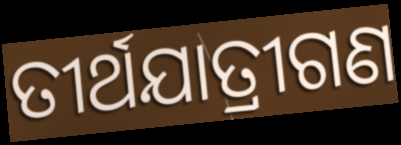
ତୀର୍ଥଯାତ୍ରୀଗଣ